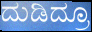
ದುಡಿದ್ರೂ